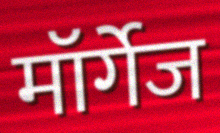
मॉर्गेज